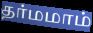
தர்மமாம்